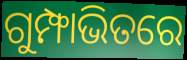
ଗୁମ୍ଫାଭିତରେ